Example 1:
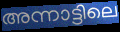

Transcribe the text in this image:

അന്നാട്ടിലെ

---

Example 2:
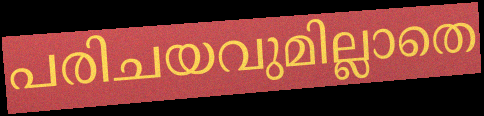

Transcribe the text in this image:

പരിചയവുമില്ലാതെ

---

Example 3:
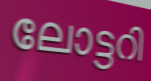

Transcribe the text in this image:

ലോട്ടറി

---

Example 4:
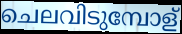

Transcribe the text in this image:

ചെലവിടുമ്പോള്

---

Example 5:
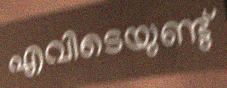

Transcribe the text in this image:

എവിടെയുണ്ടു്